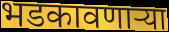
भडकावणाऱ्या